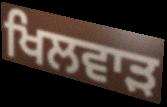
ਖਿਲਵਾੜ